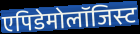
एपिडेमोलॉजिस्ट